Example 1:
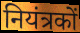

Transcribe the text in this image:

नियंत्रकों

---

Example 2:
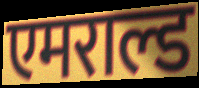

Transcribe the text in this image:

एमराल्‍ड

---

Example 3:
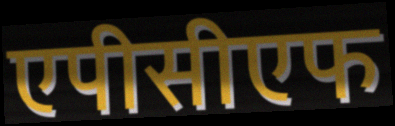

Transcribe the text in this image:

एपीसीएफ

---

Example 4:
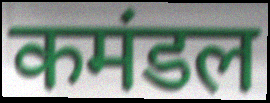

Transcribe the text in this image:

कमंडल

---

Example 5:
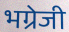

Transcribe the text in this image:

भग्रेजी